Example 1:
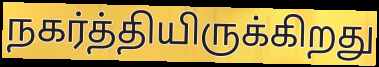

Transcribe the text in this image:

நகர்த்தியிருக்கிறது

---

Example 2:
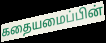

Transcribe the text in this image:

கதையமைப்பின்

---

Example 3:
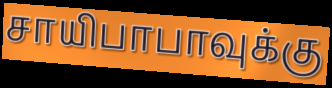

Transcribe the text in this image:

சாயிபாபாவுக்கு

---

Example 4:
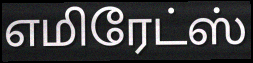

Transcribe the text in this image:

எமிரேட்ஸ்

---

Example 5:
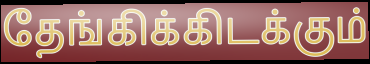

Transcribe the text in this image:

தேங்கிக்கிடக்கும்